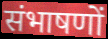
संभाषणों